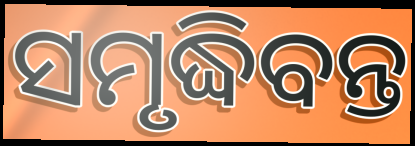
ସମୃଦ୍ଧିବନ୍ତ